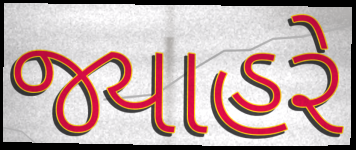
જ્યાહરે